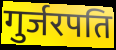
गुर्जरपति